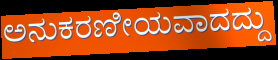
ಅನುಕರಣೀಯವಾದದ್ದು